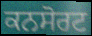
ਕਨਸੋਰਟ